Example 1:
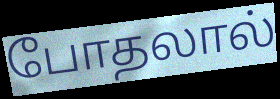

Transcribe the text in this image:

போதலால்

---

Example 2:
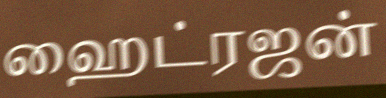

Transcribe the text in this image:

ஹைட்ரஜன்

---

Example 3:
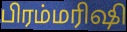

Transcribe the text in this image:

பிரம்மரிஷி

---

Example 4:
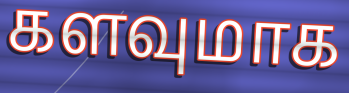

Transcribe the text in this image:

களவுமாக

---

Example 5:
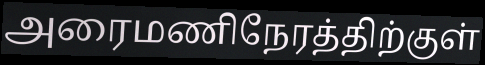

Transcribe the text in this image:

அரைமணிநேரத்திற்குள்